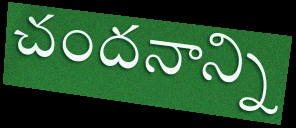
చందనాన్ని